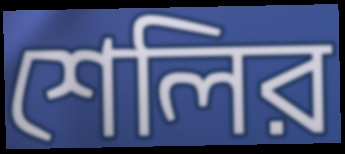
শেলির